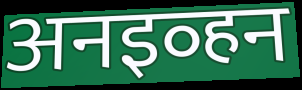
अनइव्हन